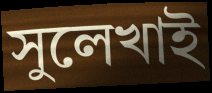
সুলেখাই